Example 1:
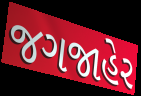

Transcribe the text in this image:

જગજાહેર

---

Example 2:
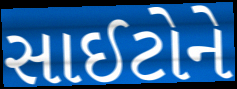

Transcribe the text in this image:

સાઈટોને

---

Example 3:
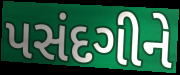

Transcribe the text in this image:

પસંદગીને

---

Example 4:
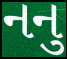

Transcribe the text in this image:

નનુ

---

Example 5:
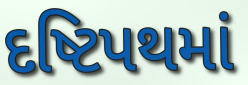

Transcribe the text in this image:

દષ્ટિપથમાં